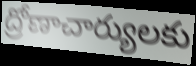
ద్రోణాచార్యులకు